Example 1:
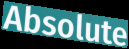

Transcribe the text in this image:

Absolute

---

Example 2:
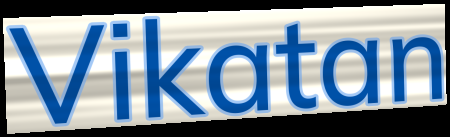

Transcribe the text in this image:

Vikatan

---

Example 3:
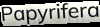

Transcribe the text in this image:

Papyrifera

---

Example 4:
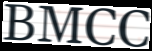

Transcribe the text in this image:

BMCC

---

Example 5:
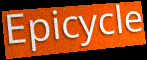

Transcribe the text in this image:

Epicycle